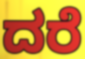
ದರೆ